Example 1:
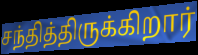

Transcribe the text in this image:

சந்தித்திருக்கிறார்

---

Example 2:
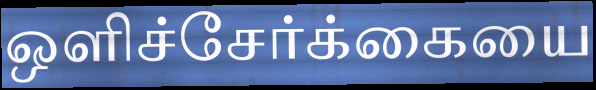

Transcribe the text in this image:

ஒளிச்சேர்க்கையை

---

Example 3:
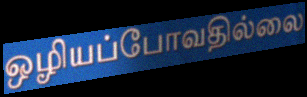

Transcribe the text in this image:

ஒழியப்போவதில்லை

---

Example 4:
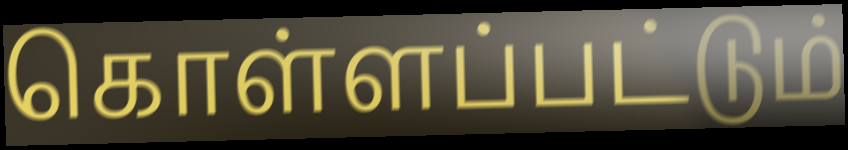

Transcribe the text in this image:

கொள்ளப்பட்டும்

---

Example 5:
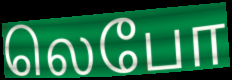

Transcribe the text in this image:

லெபோ